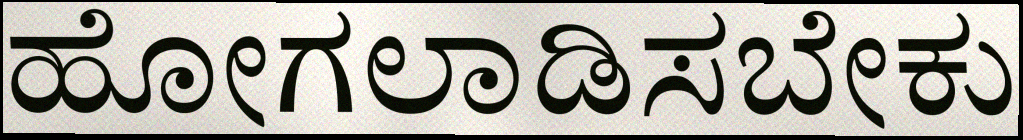
ಹೋಗಲಾಡಿಸಬೇಕು